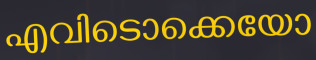
എവിടൊക്കെയോ